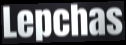
Lepchas